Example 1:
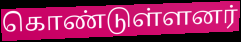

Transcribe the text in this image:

கொண்டுள்ளனர்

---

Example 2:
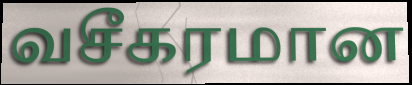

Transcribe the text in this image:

வசீகரமான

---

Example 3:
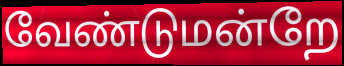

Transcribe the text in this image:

வேண்டுமன்றே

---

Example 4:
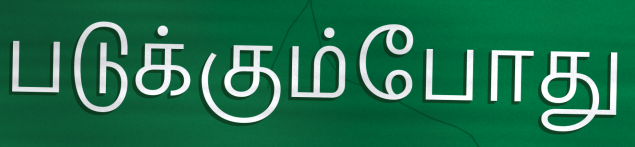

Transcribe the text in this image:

படுக்கும்போது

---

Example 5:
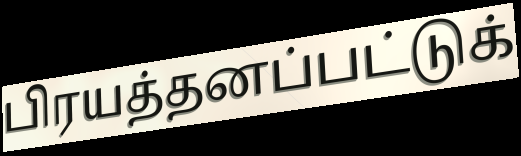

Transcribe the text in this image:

பிரயத்தனப்பட்டுக்